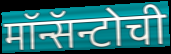
मॉन्सॅन्टोची